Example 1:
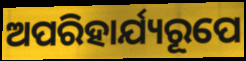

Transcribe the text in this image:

ଅପରିହାର୍ଯ୍ୟରୂପେ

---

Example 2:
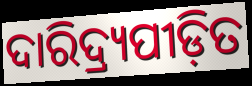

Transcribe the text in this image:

ଦାରିଦ୍ର୍ୟପୀଡ଼ିତ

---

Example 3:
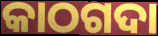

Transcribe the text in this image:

କାଠଗଦା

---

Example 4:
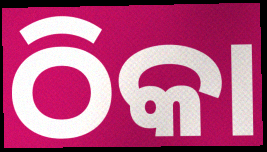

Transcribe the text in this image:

ଠିକା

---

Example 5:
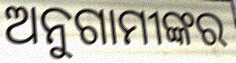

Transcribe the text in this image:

ଅନୁଗାମୀଙ୍କର